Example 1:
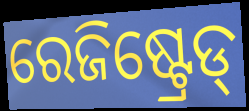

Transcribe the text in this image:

ରେଜିଷ୍ଟ୍ରେଡ୍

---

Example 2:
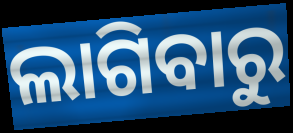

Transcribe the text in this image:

ଲାଗିବାରୁ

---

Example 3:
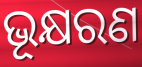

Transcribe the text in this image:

ଭୂକ୍ଷରଣ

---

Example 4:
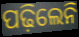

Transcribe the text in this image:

ପଢ଼ିଲେନି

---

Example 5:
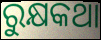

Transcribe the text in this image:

ରୁକ୍ଷକଥା